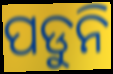
ପଡୁନି